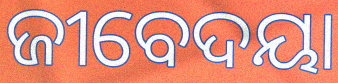
ଜୀବେଦୟା